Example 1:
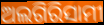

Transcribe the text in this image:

ଅଲଗିରିସାମୀ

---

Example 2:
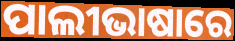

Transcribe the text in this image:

ପାଲୀଭାଷାରେ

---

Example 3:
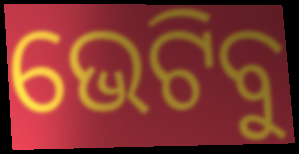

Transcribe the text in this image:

ଭେଟିବୁ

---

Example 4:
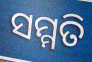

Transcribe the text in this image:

ସମ୍ମତି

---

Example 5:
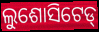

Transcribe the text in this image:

ଲୁଶୋସିଟେଡ୍